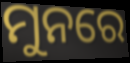
ମୁନରେ